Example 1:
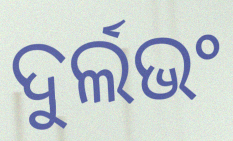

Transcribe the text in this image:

ଦୁର୍ଲଭଂ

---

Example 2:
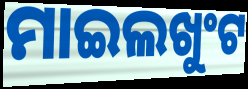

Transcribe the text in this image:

ମାଇଲଖୁଂଟ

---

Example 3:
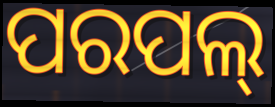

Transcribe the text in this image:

ପରପଲ୍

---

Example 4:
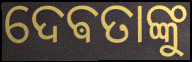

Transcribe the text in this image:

ଦେଵତାଙ୍କୁ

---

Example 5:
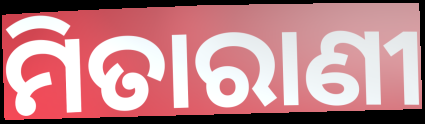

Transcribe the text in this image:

ମିତାରାଣୀ